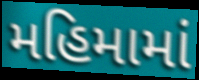
મહિમામાં